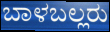
ಬಾಳಬಲ್ಲರು